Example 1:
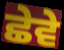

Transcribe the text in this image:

ਛੇਵੇ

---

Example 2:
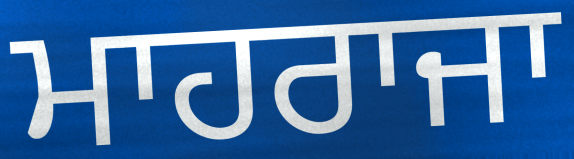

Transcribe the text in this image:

ਮਾਹਰਾਜਾ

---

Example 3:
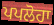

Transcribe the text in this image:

ਪਪਲੋਹਾ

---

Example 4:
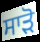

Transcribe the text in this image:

ਸਾੜੋ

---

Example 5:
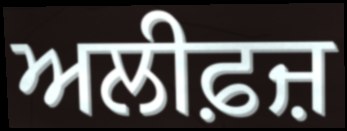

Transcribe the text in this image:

ਅਲੀਫ਼ਜ਼